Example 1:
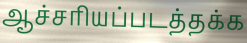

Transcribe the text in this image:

ஆச்சரியப்படத்தக்க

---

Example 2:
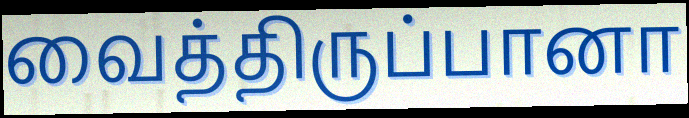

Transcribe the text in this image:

வைத்திருப்பானா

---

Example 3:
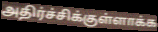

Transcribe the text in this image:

அதிர்ச்சிக்குள்ளாக்க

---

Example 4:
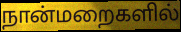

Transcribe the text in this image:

நான்மறைகளில்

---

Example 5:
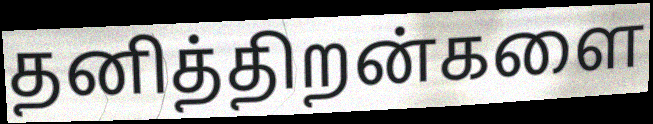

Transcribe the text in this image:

தனித்திறன்களை